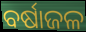
ବର୍ଷାଜଳ